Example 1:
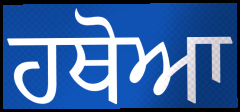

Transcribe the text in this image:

ਹਥੋਆ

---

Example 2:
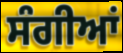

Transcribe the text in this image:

ਸੰਗੀਆਂ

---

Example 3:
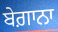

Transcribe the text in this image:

ਬੇਗ਼ਾਨਾ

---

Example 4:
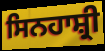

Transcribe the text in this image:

ਸਿਨਹਾਸ਼੍ਰੀ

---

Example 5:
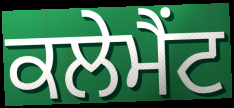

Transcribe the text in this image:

ਕਲੇਮੈਂਟ